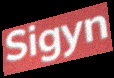
Sigyn